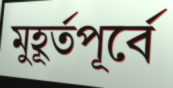
মুহূর্তপূর্বে